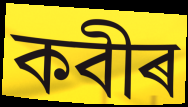
কবীৰ